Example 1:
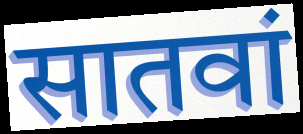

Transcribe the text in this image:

सातवां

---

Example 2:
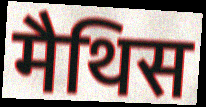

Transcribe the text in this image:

मैथिस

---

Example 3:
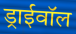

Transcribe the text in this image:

ड्राईवॉल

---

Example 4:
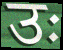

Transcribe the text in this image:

उः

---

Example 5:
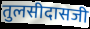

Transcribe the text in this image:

तुलसीदासजी